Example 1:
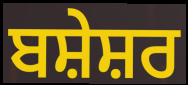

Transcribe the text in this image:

ਬਸ਼ੇਸ਼ਰ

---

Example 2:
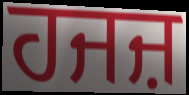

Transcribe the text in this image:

ਹਜਜ਼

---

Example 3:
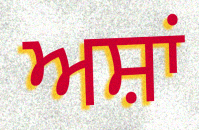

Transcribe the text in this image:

ਅਸ਼ਾਂ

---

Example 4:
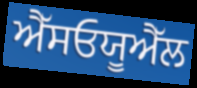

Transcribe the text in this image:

ਐੱਸਓਯੂਐੱਲ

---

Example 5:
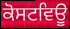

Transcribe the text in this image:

ਕੋਸਟਵਿਊ